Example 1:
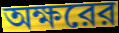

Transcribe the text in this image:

অক্ষরের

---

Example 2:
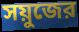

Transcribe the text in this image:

সয়ুজের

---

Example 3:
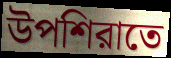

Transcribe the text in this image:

উপশিরাতে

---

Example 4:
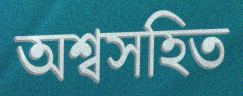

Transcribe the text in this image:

অশ্বসহিত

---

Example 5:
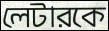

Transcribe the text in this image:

লেটারকে